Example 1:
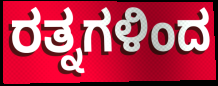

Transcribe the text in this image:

ರತ್ನಗಳಿಂದ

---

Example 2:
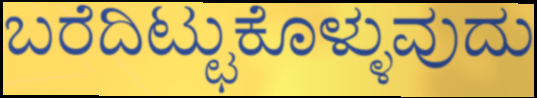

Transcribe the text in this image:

ಬರೆದಿಟ್ಟುಕೊಳ್ಳುವುದು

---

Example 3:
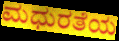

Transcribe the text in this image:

ಮಧುರತೆಯ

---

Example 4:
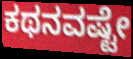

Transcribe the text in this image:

ಕಥನವಷ್ಟೇ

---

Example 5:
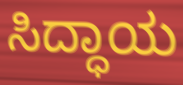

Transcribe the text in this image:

ಸಿದ್ಧಾಯ